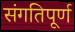
संगतिपूर्ण